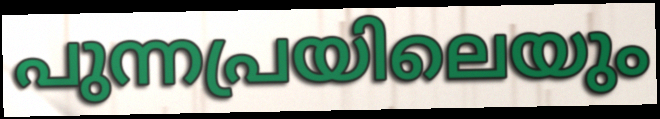
പുന്നപ്രയിലെയും